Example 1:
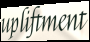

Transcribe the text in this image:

upliftment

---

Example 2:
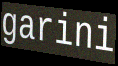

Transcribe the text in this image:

garini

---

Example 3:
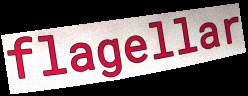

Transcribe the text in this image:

flagellar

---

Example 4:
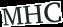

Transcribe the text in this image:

MHC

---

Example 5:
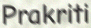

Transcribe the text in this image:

Prakriti